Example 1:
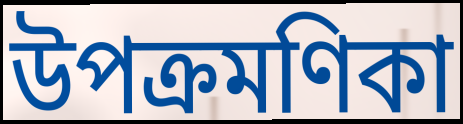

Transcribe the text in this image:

উপক্রমণিকা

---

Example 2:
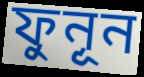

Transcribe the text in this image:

ফুনূন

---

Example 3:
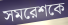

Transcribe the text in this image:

সমরেশকে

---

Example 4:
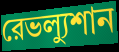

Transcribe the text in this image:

রেভল্যুশান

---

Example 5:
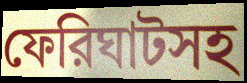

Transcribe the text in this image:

ফেরিঘাটসহ